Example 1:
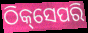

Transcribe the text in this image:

ଠିକ୍‌ସେପରି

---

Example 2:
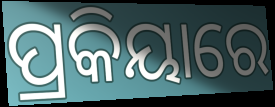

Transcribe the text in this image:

ପ୍ରକିୟାରେ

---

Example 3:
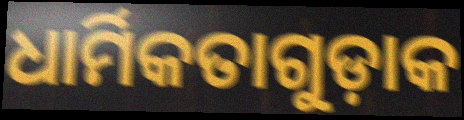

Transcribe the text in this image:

ଧାର୍ମିକତାଗୁଡ଼ାକ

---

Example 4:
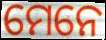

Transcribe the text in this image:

ମେନେ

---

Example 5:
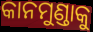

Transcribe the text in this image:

କାନମୁଣ୍ଡାକୁ